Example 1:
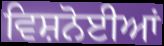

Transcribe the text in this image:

ਵਿਸ਼ਨੋਈਆਂ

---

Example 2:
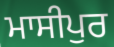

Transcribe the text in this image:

ਮਾਸੀਪੁਰ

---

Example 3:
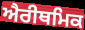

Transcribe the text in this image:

ਐਰੀਥਮਿਕ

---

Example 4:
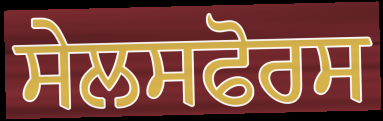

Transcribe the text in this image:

ਸੇਲਸਫੋਰਸ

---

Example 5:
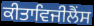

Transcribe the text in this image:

ਕੀਤਾਵਿਜੀਲੈਂਸ